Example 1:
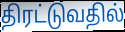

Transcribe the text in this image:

திரட்டுவதில்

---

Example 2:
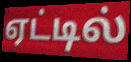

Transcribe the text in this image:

ஏட்டில்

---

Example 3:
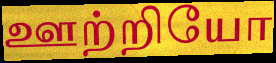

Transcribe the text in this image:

ஊற்றியோ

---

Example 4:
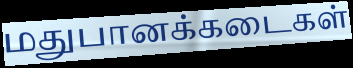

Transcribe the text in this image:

மதுபானக்கடைகள்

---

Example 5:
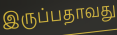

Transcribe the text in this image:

இருப்பதாவது